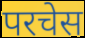
परचेस